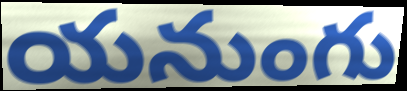
యనుంగు